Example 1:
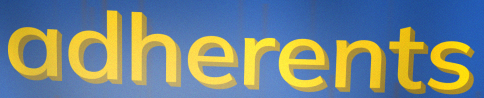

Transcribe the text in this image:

adherents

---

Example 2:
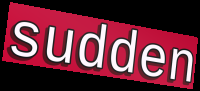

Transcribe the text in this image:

sudden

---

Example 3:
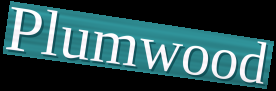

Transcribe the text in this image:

Plumwood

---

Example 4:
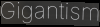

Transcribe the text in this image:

Gigantism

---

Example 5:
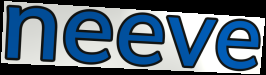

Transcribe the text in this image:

neeve